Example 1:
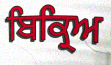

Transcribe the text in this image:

ਬਿਕ੍ਰਿਅ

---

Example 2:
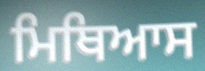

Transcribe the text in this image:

ਮਿਥਿਆਸ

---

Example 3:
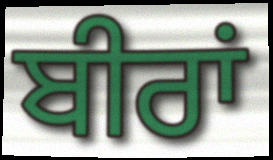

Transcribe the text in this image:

ਬੀਰਾਂ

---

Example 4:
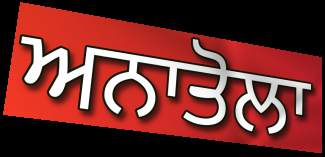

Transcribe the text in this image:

ਅਨਾਤੋਲਾ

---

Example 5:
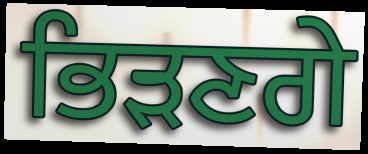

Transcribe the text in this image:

ਭਿੜਣਗੇ